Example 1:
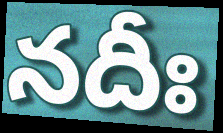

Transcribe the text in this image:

నదీః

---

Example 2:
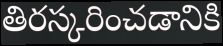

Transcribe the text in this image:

తిరస్కరించడానికి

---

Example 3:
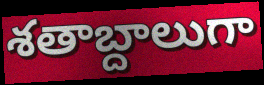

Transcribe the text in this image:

శతాబ్దాలుగా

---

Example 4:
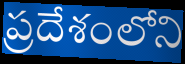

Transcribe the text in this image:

ప్రదేశంలోని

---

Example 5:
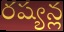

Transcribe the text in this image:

రష్యన్ల